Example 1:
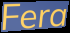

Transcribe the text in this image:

Fera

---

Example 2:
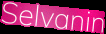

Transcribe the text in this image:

Selvanin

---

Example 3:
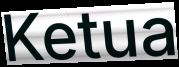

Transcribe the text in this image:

Ketua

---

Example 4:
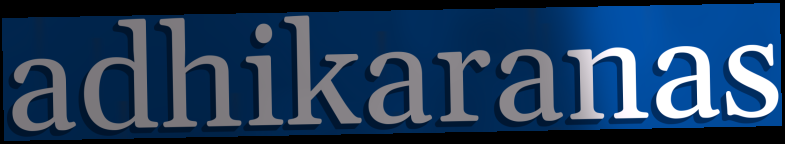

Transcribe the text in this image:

adhikaranas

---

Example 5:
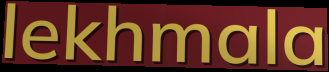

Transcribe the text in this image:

lekhmala